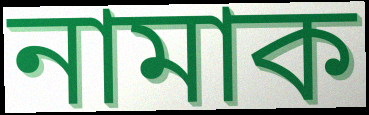
নামাক